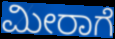
ಮೀರಾಗೆ